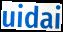
uidai